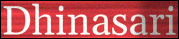
Dhinasari